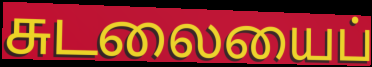
சுடலையைப்